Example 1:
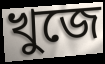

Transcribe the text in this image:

খুজে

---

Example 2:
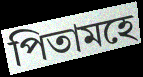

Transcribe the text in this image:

পিতামহে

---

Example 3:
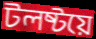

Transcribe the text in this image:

টলষ্টয়ে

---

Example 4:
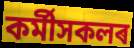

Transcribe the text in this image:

কৰ্মীসকলৰ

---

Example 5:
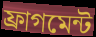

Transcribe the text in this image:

ফ্ৰাগমেন্ট